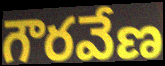
గౌరవేణ